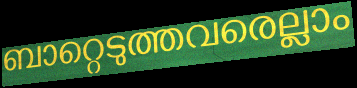
ബാറ്റെടുത്തവരെല്ലാം